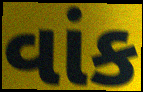
વાંક